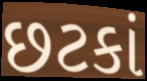
છટકાં